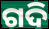
ଗଦି